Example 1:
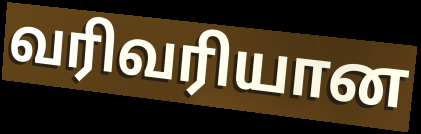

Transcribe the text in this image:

வரிவரியான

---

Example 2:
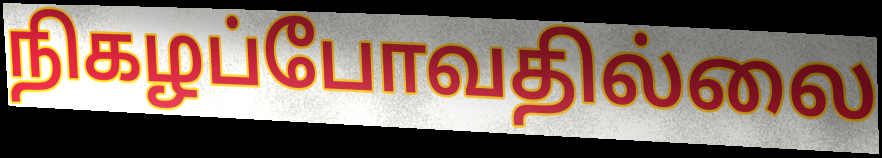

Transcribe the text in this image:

நிகழப்போவதில்லை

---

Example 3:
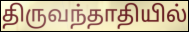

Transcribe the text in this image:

திருவந்தாதியில்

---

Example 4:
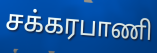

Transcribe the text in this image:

சக்கரபாணி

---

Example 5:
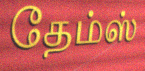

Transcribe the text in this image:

தேம்ஸ்